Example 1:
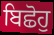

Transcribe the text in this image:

ਬਿਛੋਹੁ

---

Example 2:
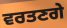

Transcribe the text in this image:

ਵਰਤਣਗੇ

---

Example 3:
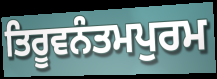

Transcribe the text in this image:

ਤਿਰੂਵਨੰਤਮਪੁਰਮ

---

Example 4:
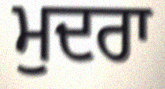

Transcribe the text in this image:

ਮੁਦਰਾ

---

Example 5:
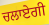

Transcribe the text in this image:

ਚਲਾਏਗੀ